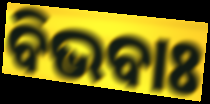
ବିଭବାଃ